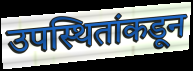
उपस्थितांकडून